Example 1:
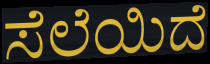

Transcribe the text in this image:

ಸೆಲೆಯಿದೆ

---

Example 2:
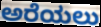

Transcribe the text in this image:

ಅರೆಯಲು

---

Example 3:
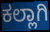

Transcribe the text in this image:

ಕಲ್ಲಾಗಿ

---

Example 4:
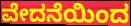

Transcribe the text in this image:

ವೇದನೆಯಿಂದ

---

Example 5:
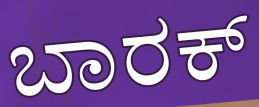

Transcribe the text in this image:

ಬಾರಕ್